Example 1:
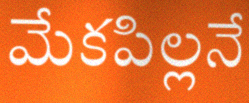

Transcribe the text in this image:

మేకపిల్లనే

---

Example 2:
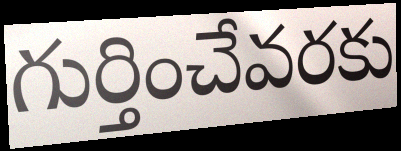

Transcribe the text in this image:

గుర్తించేవరకు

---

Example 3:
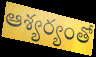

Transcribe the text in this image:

ఆశ్యర్యంతో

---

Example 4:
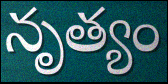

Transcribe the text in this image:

నృత్యం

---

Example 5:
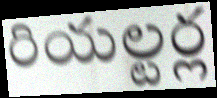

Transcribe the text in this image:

రియల్టర్ల